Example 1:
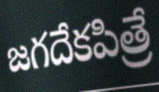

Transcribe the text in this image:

జగదేకపిత్రే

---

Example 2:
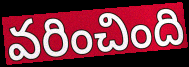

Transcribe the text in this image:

వరించింది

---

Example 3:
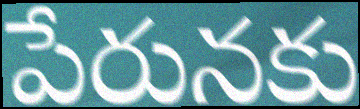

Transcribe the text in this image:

పేరునకు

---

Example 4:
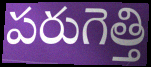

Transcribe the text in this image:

పరుగెత్తి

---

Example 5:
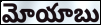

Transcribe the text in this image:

మోయాబు